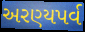
અરણ્યપર્વ